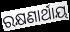
ରକ୍ଷଣାର୍ଥାୟ